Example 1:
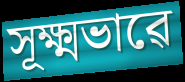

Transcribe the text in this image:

সূক্ষ্মভাৱে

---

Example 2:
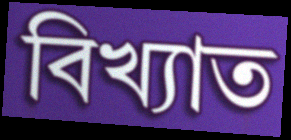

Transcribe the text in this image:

বিখ্যাত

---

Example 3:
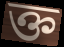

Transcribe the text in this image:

ক্ত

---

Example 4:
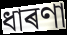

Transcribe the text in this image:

ধাৰণা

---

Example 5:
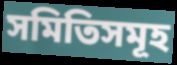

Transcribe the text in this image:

সমিতিসমূহ